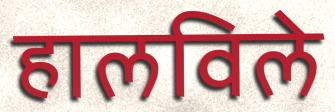
हालविले